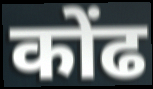
कोंढ